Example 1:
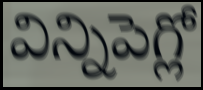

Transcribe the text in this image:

విన్నిపెగ్లో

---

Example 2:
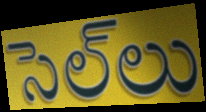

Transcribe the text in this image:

సెల్‌లు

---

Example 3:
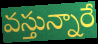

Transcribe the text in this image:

వస్తున్నారే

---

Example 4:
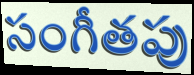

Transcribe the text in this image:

సంగీతపు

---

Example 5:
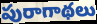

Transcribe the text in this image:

పురాగాథలు